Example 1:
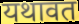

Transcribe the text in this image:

यथावत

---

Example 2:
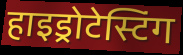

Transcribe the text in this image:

हाइड्रोटेस्टिंग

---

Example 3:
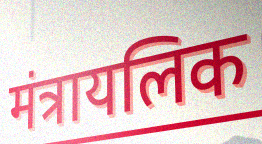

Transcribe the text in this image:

मंत्रायलिक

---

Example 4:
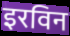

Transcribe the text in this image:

इरविन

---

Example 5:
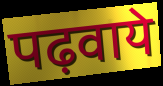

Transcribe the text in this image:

पढ़वाये